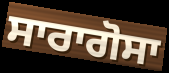
ਸਾਰਾਗੋਸਾ